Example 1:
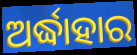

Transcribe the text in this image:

ଅର୍ଦ୍ଧାହାର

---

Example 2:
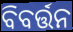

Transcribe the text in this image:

ବିବର୍ତ୍ତନ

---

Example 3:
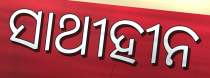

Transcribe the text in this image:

ସାଥୀହୀନ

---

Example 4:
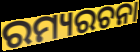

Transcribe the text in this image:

ରମ୍ୟରଚନା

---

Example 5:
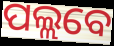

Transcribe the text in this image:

ପଲ୍ଲବେ